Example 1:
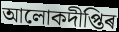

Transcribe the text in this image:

আলোকদীপ্তিৰ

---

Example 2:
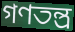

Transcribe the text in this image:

গণতন্ত্ৰ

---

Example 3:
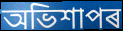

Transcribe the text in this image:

অভিশাপৰ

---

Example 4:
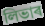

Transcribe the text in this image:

লিভাৰ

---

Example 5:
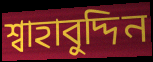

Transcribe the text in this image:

শ্বাহাবুদ্দিন